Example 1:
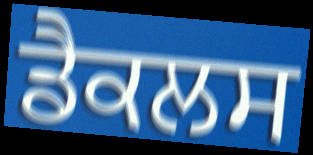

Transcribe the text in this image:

ਡੈਕਲਸ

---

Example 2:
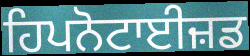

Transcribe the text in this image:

ਹਿਪਨੋਟਾਈਜ਼ਡ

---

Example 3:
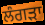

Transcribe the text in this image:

ਲੰਗੜਾ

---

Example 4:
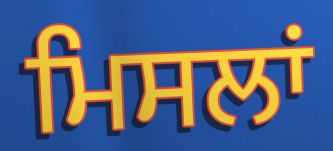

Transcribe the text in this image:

ਮਿਸਲਾਂ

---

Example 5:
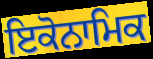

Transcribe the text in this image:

ਇਕੋਨਾਮਿਕ